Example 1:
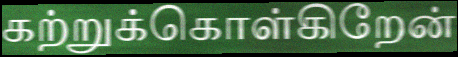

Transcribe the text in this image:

கற்றுக்கொள்கிறேன்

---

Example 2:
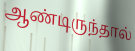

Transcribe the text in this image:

ஆண்டிருந்தால்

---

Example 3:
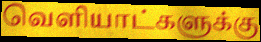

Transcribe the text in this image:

வெளியாட்களுக்கு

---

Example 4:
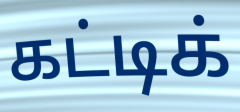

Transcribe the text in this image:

கட்டிக்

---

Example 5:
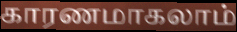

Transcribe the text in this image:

காரணமாகலாம்